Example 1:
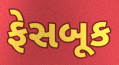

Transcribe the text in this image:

ફેસબૂક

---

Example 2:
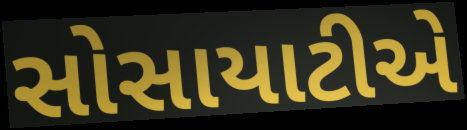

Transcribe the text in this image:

સોસાયાટીએ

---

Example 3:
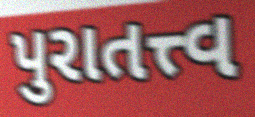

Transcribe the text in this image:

પુરાતત્ત્વ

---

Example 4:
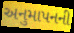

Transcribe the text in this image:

અનુમાપનની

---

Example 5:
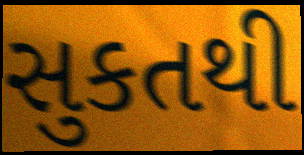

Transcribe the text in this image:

સુકતથી